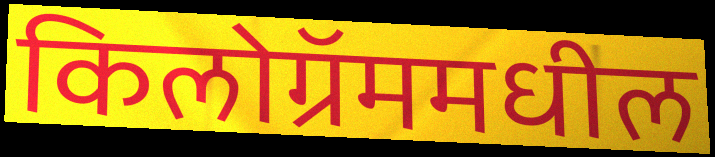
किलोग्रॅममधील